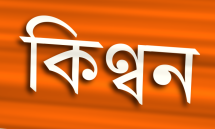
কিণ্বন